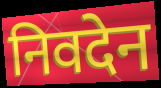
निवदेन